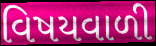
વિષયવાળી